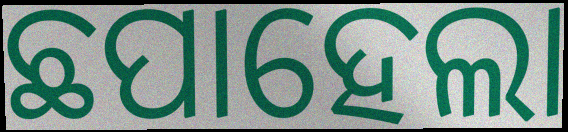
ଛପାହେଲା